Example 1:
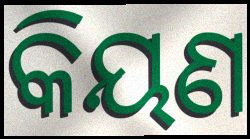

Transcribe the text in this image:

କିୟଣ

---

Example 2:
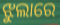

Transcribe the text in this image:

ଝୁଲାରେ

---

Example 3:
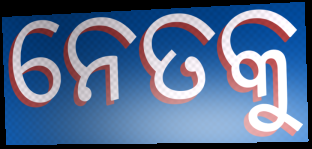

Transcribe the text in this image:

ନେତକୁ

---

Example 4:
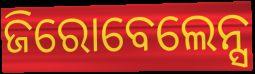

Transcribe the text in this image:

ଜିରୋବେଲେନ୍ସ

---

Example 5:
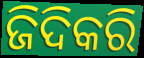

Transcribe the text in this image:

ଜିଦିକରି